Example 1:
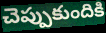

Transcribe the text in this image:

చెప్పుకుందికి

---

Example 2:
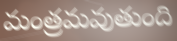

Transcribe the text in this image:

మంత్రమవుతుంది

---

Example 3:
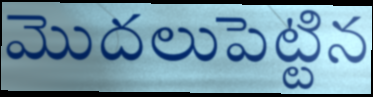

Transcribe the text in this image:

మొదలుపెట్టిన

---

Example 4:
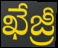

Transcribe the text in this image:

ఖేజ్రీ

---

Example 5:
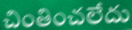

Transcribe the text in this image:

చింతించలేదు